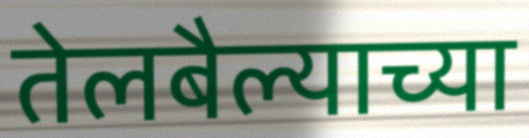
तेलबैल्याच्या